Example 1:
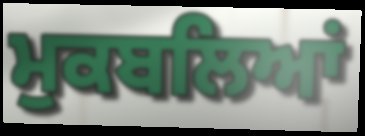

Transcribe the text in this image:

ਮੁਕਬਲਿਆਂ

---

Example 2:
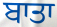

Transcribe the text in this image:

ਬਾਤਾ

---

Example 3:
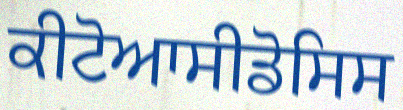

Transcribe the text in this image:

ਕੀਟੋਆਸੀਡੋਸਿਸ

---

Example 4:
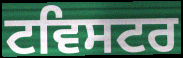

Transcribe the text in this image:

ਟਵਿਸਟਰ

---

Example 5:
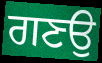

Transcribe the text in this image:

ਗਣਉ